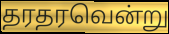
தரதரவென்று